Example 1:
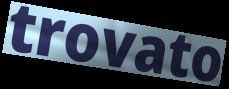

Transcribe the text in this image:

trovato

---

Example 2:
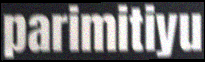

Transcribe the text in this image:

parimitiyu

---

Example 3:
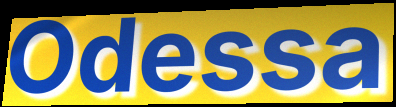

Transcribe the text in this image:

Odessa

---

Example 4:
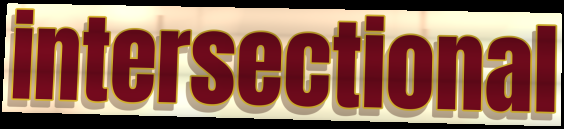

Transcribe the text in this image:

intersectional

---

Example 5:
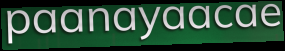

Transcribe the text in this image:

paanayaacae